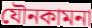
যৌনকামনা